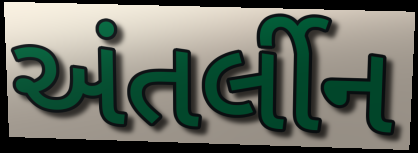
અંતર્લીન